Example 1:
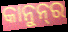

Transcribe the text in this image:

କାନୁନ୍‌ର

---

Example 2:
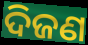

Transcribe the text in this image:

ଦିଜଣ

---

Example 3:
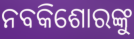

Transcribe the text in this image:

ନବକିଶୋରଙ୍କୁ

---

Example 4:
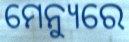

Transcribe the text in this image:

ମେନ୍ୟୁରେ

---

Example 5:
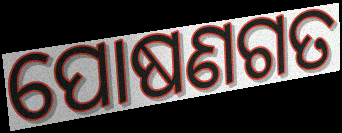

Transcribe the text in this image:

ପୋଷଣଗତ